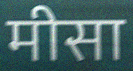
मीसा